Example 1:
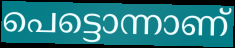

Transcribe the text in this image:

പെട്ടൊന്നാണ്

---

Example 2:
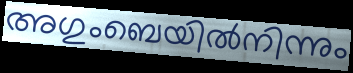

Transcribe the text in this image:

അഗുംബെയിൽനിന്നും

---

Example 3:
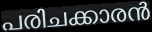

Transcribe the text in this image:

പരിചക്കാരൻ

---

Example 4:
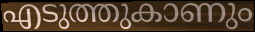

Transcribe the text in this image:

എടുത്തുകാണും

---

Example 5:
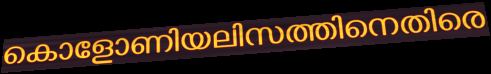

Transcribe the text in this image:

കൊളോണിയലിസത്തിനെതിരെ